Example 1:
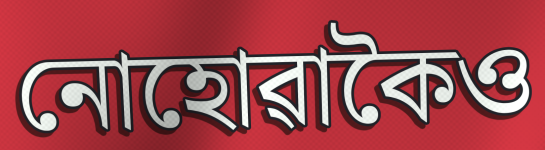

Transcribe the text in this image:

নোহোৱাকৈও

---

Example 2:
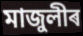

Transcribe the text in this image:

মাজুলীৰ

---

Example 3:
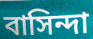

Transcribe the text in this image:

বাসিন্দা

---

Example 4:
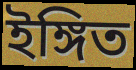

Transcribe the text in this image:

ইঙ্গিত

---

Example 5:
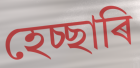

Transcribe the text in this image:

হেচ্ছাৰি